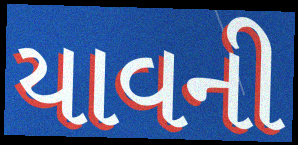
યાવની